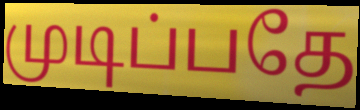
முடிப்பதே